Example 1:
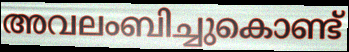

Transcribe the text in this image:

അവലംബിച്ചുകൊണ്ട്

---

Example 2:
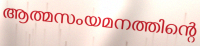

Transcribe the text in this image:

ആത്മസംയമനത്തിന്റെ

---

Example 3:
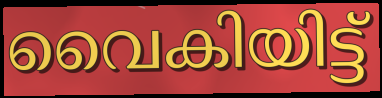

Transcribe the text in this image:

വൈകിയിട്ട്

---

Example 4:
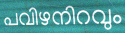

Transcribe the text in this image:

പവിഴനിറവും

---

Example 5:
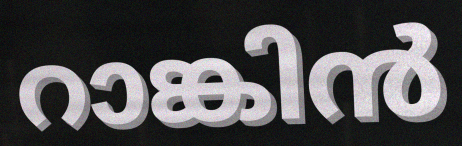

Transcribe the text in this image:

റാങ്കിൻ